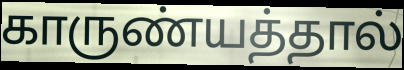
காருண்யத்தால்